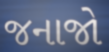
જનાજો